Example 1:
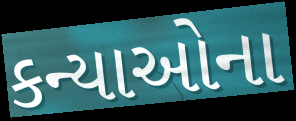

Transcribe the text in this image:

કન્યાઓના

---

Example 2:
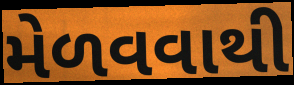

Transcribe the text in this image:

મેળવવાથી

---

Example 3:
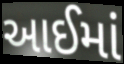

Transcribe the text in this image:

આઈમાં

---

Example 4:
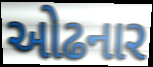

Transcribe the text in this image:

ઓઢનાર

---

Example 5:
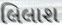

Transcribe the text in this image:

લિલાશ